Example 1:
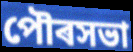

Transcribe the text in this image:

পৌৰসভা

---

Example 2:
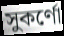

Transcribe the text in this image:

সুকৰ্ণো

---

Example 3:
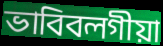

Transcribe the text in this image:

ভাবিবলগীয়া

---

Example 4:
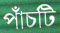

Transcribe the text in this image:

পাঁচটি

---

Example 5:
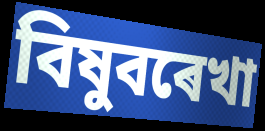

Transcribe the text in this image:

বিষুবৰেখা